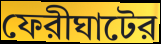
ফেরীঘাটের